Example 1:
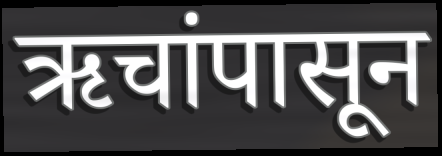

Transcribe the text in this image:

ऋचांपासून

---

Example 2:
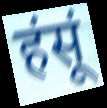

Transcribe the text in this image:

हंसूं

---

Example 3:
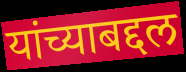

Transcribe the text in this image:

यांच्याबद्दल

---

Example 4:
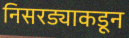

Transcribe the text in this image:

निसरड्याकडून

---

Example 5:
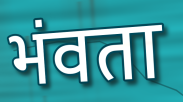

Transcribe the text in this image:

भंवता